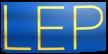
LEP